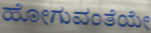
ಹೋಗುವಂತೆಯೇ